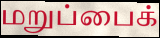
மறுப்பைக்